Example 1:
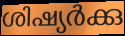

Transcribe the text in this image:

ശിഷ്യർക്കു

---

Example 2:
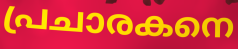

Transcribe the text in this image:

പ്രചാരകനെ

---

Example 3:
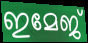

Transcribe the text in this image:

ഇമേജ്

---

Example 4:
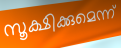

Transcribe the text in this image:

സൂക്ഷിക്കുമെന്ന്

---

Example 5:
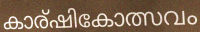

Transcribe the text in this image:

കാര്ഷികോത്സവം